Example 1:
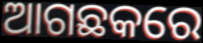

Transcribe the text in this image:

ଆଗଛକରେ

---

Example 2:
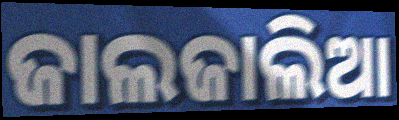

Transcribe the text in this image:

ଜାଲଜାଲିଆ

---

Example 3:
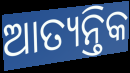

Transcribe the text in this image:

ଆତ୍ୟନ୍ତିକ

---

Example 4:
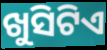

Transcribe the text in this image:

ଖୁସିଟିଏ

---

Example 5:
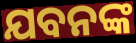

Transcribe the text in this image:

ଯବନଙ୍କ